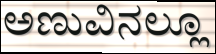
ಅಣುವಿನಲ್ಲೂ